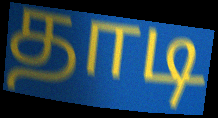
தாடி